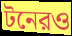
টনেরও